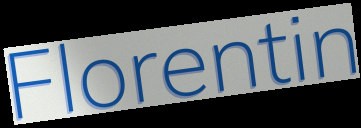
Florentin